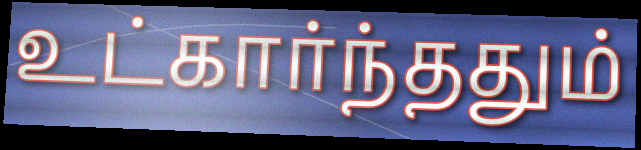
உட்கார்ந்ததும்